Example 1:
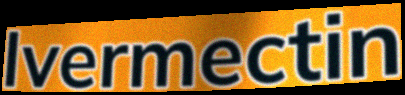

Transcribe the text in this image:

Ivermectin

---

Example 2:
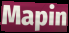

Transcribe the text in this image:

Mapin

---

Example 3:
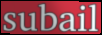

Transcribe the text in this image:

subail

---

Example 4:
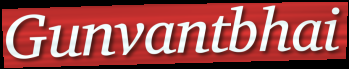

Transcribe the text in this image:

Gunvantbhai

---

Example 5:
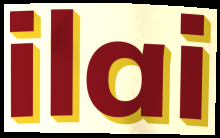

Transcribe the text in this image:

ilai